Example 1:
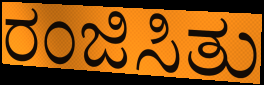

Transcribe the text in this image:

ರಂಜಿಸಿತು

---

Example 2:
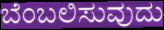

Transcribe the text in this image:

ಬೆಂಬಲಿಸುವುದು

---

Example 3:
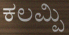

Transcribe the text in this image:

ಕಲಮ್ಪಿ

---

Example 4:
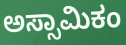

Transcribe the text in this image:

ಅಸ್ಸಾಮಿಕಂ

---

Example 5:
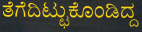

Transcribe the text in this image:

ತೆಗೆದಿಟ್ಟುಕೊಂಡಿದ್ದ